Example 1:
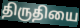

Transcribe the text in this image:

திருதியை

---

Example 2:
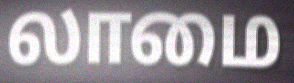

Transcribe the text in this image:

லாமை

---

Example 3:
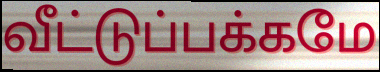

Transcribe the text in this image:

வீட்டுப்பக்கமே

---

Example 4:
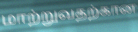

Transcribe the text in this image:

மாற்றுவதற்கான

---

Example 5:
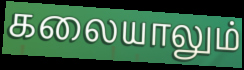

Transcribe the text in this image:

கலையாலும்